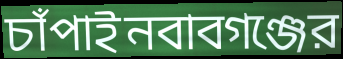
চাঁপাইনবাবগঞ্জের